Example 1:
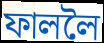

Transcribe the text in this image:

ফাললৈ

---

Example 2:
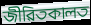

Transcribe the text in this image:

জীৱিতকালত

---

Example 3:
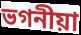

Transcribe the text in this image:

ভগনীয়া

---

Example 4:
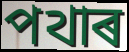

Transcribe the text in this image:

পথাৰ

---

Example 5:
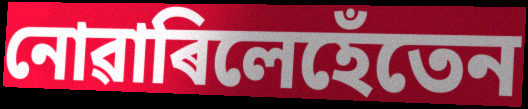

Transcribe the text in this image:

নোৱাৰিলেহেঁতেন